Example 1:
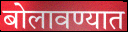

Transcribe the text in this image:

बोलावण्यात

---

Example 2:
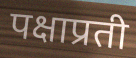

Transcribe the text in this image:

पक्षाप्रती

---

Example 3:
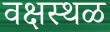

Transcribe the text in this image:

वक्षस्थळ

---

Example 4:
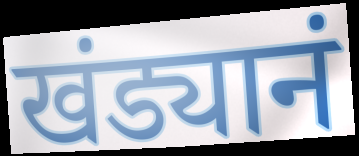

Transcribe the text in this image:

खंड्यानं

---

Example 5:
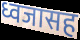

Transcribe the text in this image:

ध्वजासह